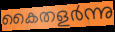
കൈതളർന്നു